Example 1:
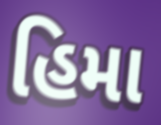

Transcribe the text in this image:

હિમા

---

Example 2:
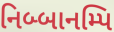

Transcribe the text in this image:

નિબ્બાનમ્પિ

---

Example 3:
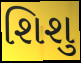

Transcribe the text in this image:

શિશુ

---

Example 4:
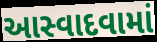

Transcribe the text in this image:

આસ્વાદવામાં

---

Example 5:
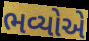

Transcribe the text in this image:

ભવ્યોએ